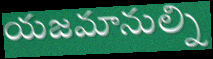
యజమానుల్ని